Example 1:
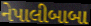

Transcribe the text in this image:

નેપાલીબાબા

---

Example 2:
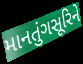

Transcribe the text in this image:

માનતુંગસૂરિને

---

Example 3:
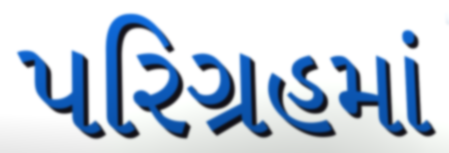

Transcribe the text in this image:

પરિગ્રહમાં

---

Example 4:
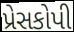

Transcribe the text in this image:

પ્રેસકોપી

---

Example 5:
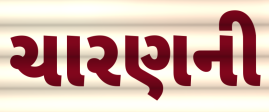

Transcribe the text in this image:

ચારણની